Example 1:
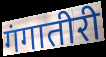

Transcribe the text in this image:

गंगातीरी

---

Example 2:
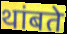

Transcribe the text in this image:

थांबते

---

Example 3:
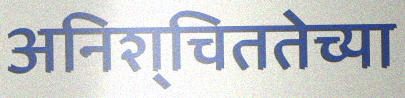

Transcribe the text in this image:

अनिश्चिततेच्या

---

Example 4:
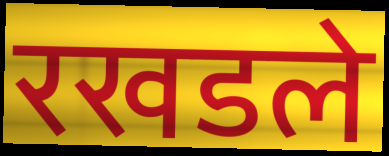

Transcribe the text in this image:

रखडले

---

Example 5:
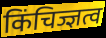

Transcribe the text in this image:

किंचिज्ज्ञत्व